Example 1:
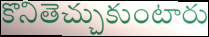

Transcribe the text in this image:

కొనితెచ్చుకుంటారు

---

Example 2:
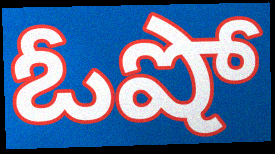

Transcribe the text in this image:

ఓషో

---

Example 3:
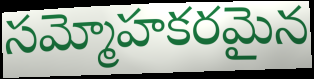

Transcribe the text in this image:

సమ్మోహకరమైన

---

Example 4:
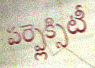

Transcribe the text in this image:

పర్ప్లెక్సిటీ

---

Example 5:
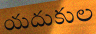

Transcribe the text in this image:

యదుకుల